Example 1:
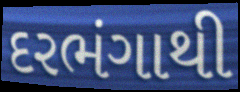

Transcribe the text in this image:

દરભંગાથી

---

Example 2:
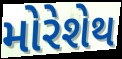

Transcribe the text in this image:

મોરેશેથ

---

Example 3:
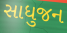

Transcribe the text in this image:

સાધુજન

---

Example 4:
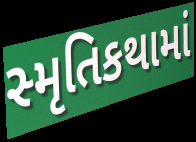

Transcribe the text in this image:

સ્મૃતિકથામાં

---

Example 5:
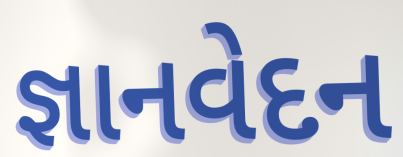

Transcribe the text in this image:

જ્ઞાનવેદન